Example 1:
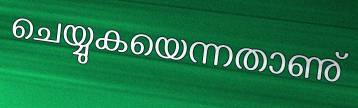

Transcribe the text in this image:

ചെയ്യുകയെന്നതാണു്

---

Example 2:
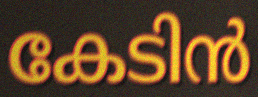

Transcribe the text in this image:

കേടിൻ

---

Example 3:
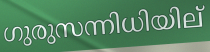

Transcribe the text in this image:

ഗുരുസന്നിധിയില്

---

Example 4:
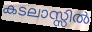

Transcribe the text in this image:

കടലാസ്സിൽ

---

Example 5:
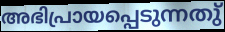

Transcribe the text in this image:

അഭിപ്രായപ്പെടുന്നതു്